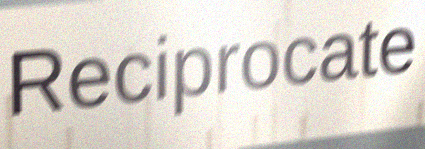
Reciprocate